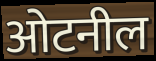
ओटनील